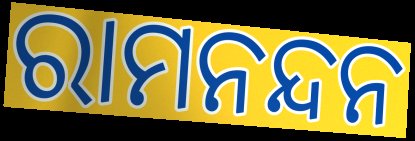
ରାମନନ୍ଦନ